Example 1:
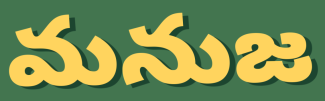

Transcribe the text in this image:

మనుజ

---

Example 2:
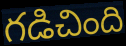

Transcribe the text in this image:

గడిచింది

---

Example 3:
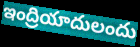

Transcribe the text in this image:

ఇంద్రియాదులందు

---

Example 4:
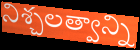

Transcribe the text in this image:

నిశ్చలత్వాన్ని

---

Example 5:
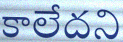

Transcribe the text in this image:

కాలేదని